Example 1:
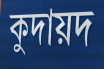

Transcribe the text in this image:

কুদায়দ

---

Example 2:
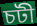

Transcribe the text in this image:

চটী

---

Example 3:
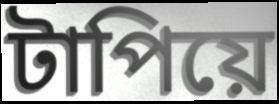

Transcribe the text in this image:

টাপিয়ে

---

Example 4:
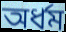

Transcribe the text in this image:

অর্ধম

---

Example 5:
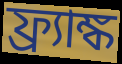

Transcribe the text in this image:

ফ্র্যাঙ্ক